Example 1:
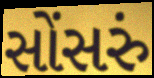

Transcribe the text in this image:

સોંસરું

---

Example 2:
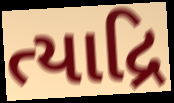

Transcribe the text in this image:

ત્યાદ્રિ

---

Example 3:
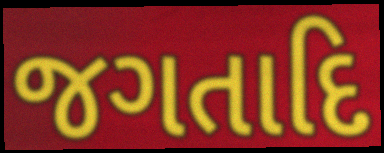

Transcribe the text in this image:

જગતાદિ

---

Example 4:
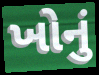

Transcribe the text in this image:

ખોનું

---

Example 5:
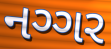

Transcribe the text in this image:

નગ્ગર